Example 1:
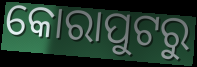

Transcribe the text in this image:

କୋରାପୁଟରୁ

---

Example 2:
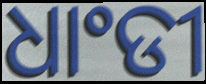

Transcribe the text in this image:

ଧାଂଡୀ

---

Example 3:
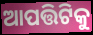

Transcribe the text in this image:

ଆପତ୍ତିଟିକୁ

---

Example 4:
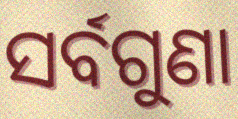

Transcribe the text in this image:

ସର୍ବଗୁଣା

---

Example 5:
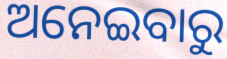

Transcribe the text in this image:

ଅନେଇବାରୁ